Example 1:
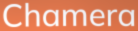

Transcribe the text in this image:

Chamera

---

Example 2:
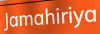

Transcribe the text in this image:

Jamahiriya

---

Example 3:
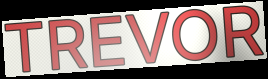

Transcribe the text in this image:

TREVOR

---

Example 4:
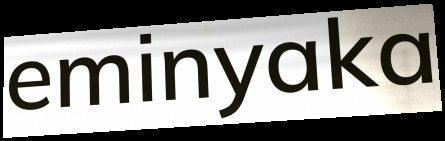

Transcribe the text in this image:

eminyaka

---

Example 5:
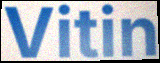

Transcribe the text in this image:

Vitin